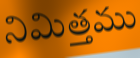
నిమిత్తము